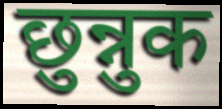
छुन्नुक